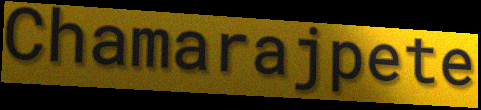
Chamarajpete